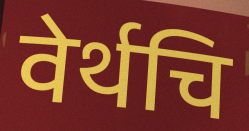
वेर्थचि